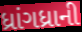
ધ્રાંગધ્રાની